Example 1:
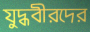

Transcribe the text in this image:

যুদ্ধবীরদের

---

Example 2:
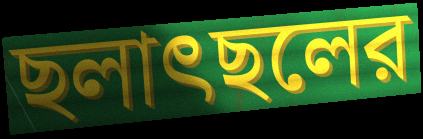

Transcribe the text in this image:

ছলাৎছলের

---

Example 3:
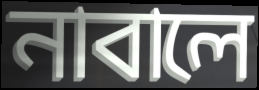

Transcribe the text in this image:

নাবালে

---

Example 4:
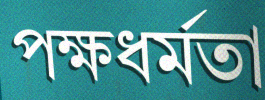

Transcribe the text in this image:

পক্ষধর্মতা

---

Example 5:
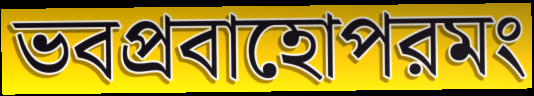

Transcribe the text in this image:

ভবপ্রবাহোপরমং